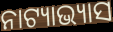
ନାଟ୍ୟାଭ୍ୟାସ